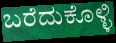
ಬರೆದುಕೊಳ್ಳಿ